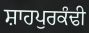
ਸ਼ਾਹਪੁਰਕੰਢੀ